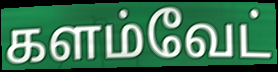
களம்வேட்